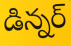
డిన్నర్